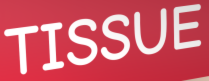
TISSUE